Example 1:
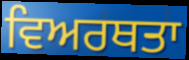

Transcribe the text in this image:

ਵਿਅਰਥਤਾ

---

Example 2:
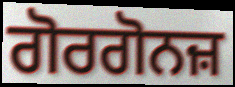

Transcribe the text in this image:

ਗੋਰਗੋਨਜ਼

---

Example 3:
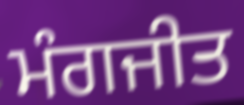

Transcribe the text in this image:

ਮੰਗਜੀਤ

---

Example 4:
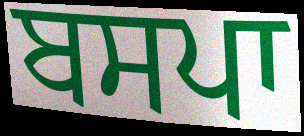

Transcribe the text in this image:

ਬਸਪਾ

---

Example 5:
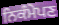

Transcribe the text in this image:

ਨਿਕੰਮੇਪਣ